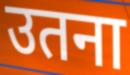
उतना